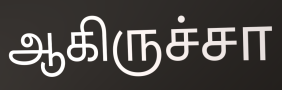
ஆகிருச்சா